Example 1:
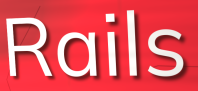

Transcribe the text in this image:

Rails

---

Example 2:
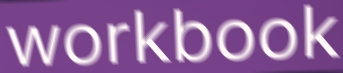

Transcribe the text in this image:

workbook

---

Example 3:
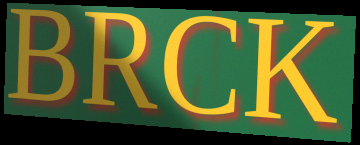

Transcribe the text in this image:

BRCK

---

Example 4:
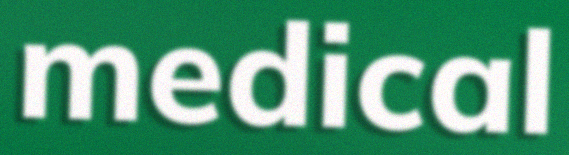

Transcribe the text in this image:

medical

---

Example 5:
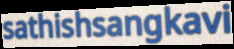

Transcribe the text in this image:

sathishsangkavi